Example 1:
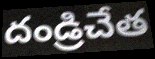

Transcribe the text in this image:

దండ్రిచేత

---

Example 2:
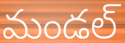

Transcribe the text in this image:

మండల్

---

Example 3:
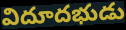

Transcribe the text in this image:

విదూదభుడు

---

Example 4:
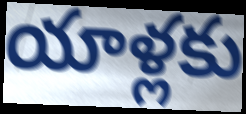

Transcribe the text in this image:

యాళ్లకు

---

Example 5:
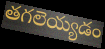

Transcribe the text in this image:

తగలెయ్యడం